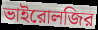
ভাইরোলজির